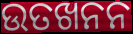
ଉତଖନନ